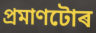
প্ৰমাণটোৰ